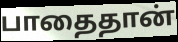
பாதைதான்